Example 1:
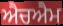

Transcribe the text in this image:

ਐਚਐਮ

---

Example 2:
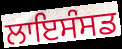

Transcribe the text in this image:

ਲਾਇਸੰਸਡ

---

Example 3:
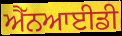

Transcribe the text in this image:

ਐੱਨਆਈਡੀ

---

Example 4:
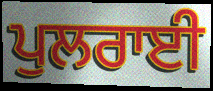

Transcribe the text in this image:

ਪੁਲਰਾਈ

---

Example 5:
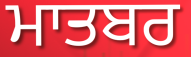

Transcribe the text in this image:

ਮਾਤਬਰ